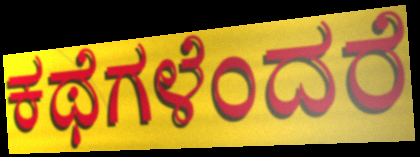
ಕಥೆಗಳೆಂದರೆ